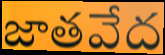
జాతవేద